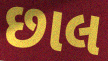
છાલ